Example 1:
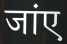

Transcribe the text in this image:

जांए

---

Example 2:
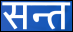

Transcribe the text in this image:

सन्त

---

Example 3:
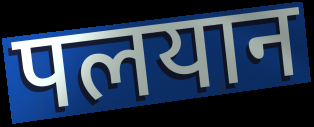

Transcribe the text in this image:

पलयान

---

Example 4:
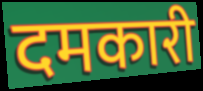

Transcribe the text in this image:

दमकारी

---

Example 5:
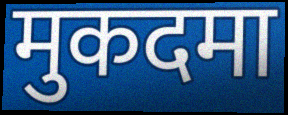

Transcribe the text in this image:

मुकदमा